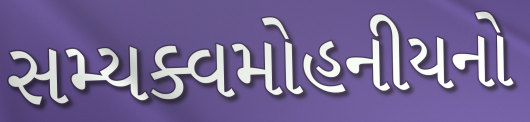
સમ્યક્વમોહનીયનો